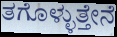
ತಗೊಳ್ಳುತ್ತೇನೆ